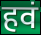
हवं